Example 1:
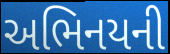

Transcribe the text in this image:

અભિનયની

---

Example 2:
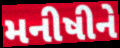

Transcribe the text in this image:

મનીષીને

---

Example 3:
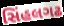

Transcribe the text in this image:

સિંહલગઢ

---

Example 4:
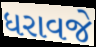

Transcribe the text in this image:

ધરાવજે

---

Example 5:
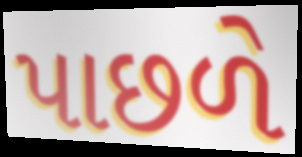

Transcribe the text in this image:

પાછળે